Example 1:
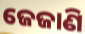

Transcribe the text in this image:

ଜେଜାଣି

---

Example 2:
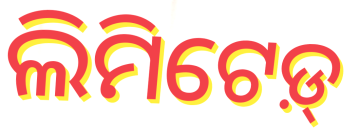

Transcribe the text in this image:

ଲିମିଟେଡ଼୍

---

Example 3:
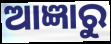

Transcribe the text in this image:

ଆଜ୍ଞାରୁ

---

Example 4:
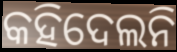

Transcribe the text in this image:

କହିଦେଲନି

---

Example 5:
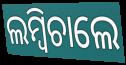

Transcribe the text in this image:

ଲମ୍ବିଚାଲେ